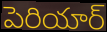
పెరియార్